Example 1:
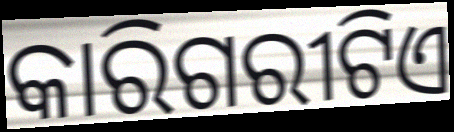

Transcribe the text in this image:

କାରିଗରୀଟିଏ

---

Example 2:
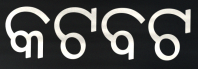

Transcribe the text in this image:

କଟବଟ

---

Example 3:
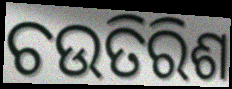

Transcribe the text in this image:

ଚଉତିରିଶ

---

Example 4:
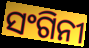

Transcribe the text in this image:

ସଂଗିନୀ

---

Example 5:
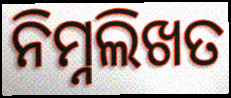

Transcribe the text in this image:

ନିମ୍ନଲିଖତ